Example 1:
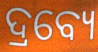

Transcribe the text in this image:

ଦ୍ରବ୍ୟେ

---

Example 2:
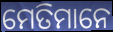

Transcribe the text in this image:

ମେତିମାନେ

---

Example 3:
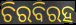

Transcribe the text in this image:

ଚିରବିରହ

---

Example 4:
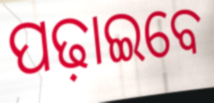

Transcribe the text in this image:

ପଢ଼ାଇବେ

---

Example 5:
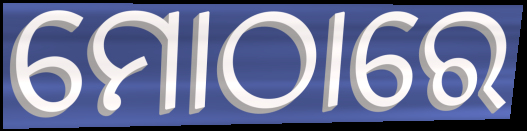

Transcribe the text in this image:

ମୋଠାରେ